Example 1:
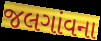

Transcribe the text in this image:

જલગાંવના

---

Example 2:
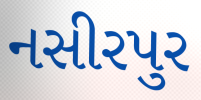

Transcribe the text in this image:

નસીરપુર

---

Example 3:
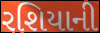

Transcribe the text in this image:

રશિયાની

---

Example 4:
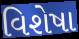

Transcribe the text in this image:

વિશેષા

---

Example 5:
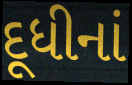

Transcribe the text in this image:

દૂધીનાં